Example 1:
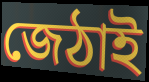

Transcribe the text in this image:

জেঠাই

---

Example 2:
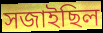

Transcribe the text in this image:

সজাইছিল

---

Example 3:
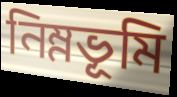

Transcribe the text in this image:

নিম্নভূমি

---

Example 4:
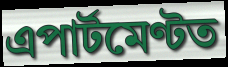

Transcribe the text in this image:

এপাৰ্টমেণ্টত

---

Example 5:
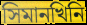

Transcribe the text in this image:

সিমানখিনি